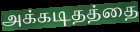
அக்கடிதத்தை